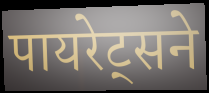
पायरेट्सने